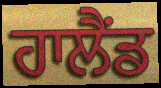
ਹਾਲੈਂਡ